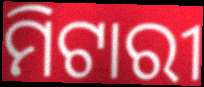
ମିଟାରୀ